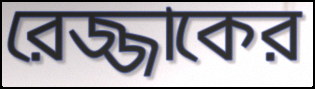
রেজ্জাকের